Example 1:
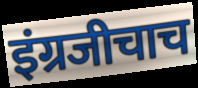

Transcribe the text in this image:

इंग्रजीचाच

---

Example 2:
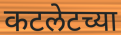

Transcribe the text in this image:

कटलेटच्या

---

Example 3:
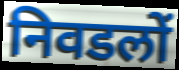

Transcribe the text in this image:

निवडलों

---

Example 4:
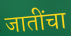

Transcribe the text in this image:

जातींचा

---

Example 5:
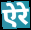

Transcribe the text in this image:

ऐरे